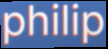
philip